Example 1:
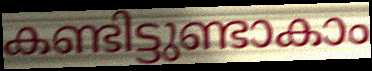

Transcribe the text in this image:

കണ്ടിട്ടുണ്ടാകാം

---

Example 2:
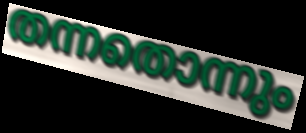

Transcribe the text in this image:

തന്നതൊന്നും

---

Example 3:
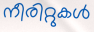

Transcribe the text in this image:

നീരിറ്റുകൾ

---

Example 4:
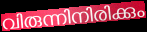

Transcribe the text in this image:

വിരുന്നിനിരിക്കും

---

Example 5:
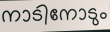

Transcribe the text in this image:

നാടിനോടും